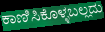
ಕಾಣಿಸಿಕೊಳ್ಳಬಲ್ಲದು